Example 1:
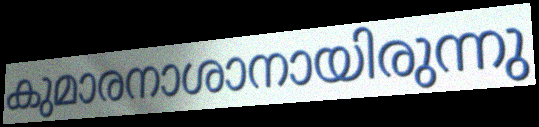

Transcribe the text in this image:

കുമാരനാശാനായിരുന്നു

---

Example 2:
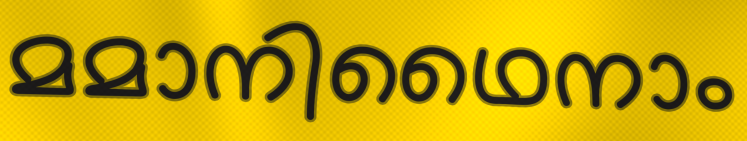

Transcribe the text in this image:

മമാനിഥൈനാം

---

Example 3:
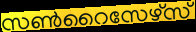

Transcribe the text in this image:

സൺറൈസേഴ്സ്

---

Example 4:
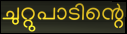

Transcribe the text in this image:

ചുറ്റുപാടിന്റെ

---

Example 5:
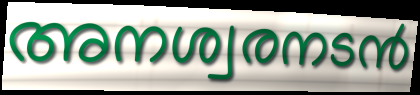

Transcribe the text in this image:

അനശ്വരനടൻ